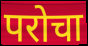
परोचा